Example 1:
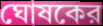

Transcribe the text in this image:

ঘোষকের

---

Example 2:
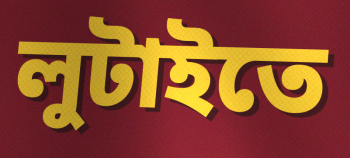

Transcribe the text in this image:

লুটাইতে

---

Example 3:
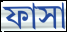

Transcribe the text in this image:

ফাসা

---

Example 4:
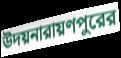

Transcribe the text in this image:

উদয়নারায়ণপুরের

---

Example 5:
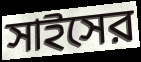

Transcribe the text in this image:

সাইসের